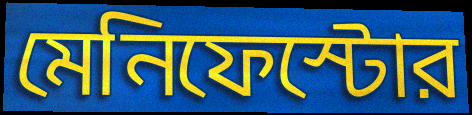
মেনিফেস্টোর